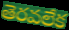
తెరవలేక